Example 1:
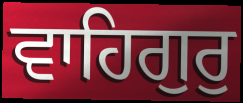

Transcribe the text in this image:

ਵਾਹਿਗੁਰੁ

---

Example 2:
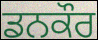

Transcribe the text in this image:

ਡਨਕੌਰ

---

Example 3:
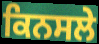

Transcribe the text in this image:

ਕਿਨਸਲੇ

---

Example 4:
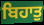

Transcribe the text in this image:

ਬਿਹਾਤੁ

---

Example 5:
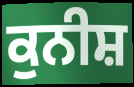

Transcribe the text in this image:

ਕੁਨੀਸ਼